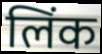
लिंक